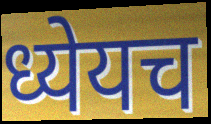
ध्येयच